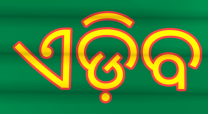
ଏଡ଼ିବ